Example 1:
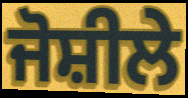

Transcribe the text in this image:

ਜੋਸ਼ੀਲੇ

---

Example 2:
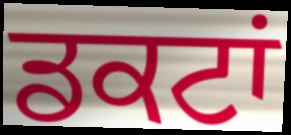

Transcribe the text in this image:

ਡਕਟਾਂ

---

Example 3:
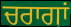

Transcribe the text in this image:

ਚਰਾਗਾਂ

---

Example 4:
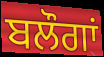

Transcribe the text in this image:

ਬਲੌਗਾਂ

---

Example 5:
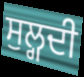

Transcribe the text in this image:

ਸੁਲ੍ਗਦੀ